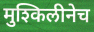
मुश्किलीनेच